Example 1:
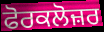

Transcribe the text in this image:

ਫੋਰਕਲੋਜ਼ਰ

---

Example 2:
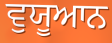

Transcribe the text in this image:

ਵੁਯੂਆਨ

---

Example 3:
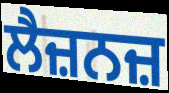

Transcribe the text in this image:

ਲੈਜ਼ਨਜ਼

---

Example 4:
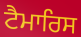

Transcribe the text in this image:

ਟੈਮਾਰਿਸ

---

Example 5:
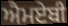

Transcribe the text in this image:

ਐਮਏਬੀ